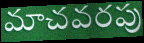
మాచవరపు